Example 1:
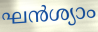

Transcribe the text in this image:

ഘൻശ്യാം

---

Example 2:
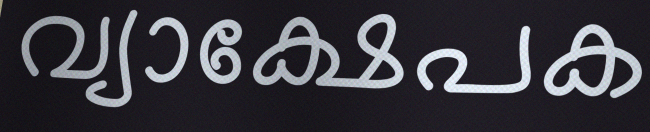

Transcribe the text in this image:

വ്യാക്ഷേപക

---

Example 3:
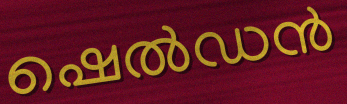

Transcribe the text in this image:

ഷെൽഡൻ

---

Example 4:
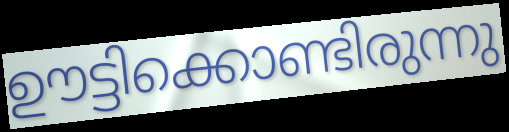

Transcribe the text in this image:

ഊട്ടിക്കൊണ്ടിരുന്നു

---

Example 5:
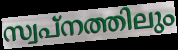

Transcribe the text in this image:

സ്വപ്നത്തിലും